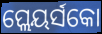
ପ୍ଲେୟର୍ସକୋ